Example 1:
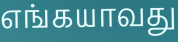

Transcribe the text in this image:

எங்கயாவது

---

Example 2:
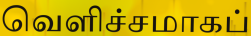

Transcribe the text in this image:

வெளிச்சமாகப்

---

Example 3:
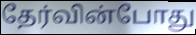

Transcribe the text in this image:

தேர்வின்போது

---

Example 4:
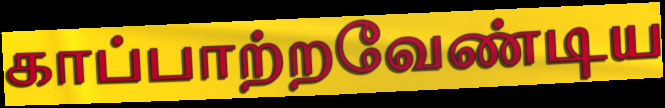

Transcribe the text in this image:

காப்பாற்றவேண்டிய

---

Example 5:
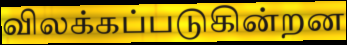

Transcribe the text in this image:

விலக்கப்படுகின்றன